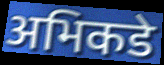
अभिकडे